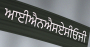
ਆਈਐਨਐਸਏਸੀਓਜੀ